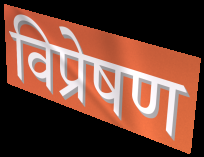
विप्रेषण